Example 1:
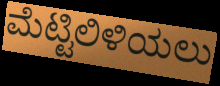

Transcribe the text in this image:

ಮೆಟ್ಟಿಲಿಳಿಯಲು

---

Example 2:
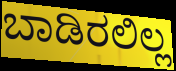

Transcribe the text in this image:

ಬಾಡಿರಲಿಲ್ಲ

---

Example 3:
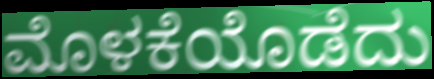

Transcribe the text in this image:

ಮೊಳಕೆಯೊಡೆದು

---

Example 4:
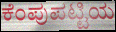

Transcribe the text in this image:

ಕೆಂಪುಪಟ್ಟಿಯ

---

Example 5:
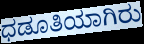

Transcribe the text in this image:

ಧಡೂತಿಯಾಗಿರು